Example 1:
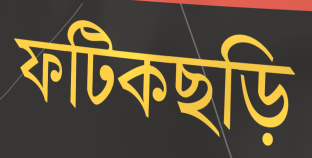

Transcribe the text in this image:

ফটিকছড়ি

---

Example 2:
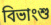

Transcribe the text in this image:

বিভাংশু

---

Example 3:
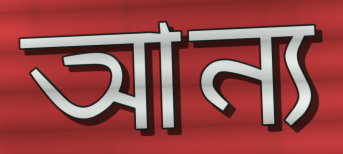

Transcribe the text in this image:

আন্য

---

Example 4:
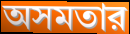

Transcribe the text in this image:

অসমতার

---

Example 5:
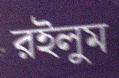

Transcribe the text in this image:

রইলুম